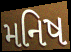
મનિષ